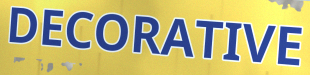
DECORATIVE